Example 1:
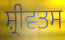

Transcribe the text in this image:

ਸ਼੍ਰੀਵਤਸ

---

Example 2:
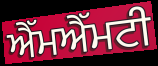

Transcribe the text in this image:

ਐੱਮਐੱਮਟੀ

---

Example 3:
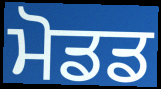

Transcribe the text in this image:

ਮੋਡਡ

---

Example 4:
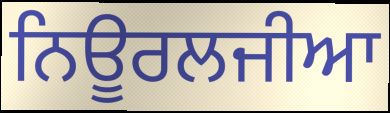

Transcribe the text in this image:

ਨਿਊਰਲਜੀਆ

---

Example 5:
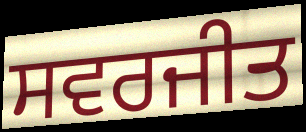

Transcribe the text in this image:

ਸਵਰਜੀਤ